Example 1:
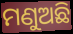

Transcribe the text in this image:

ମଣୁଅଛି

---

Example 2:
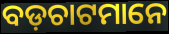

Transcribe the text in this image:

ବଡ଼ଚାଟମାନେ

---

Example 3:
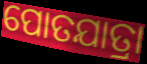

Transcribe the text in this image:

ପୋତଯାତ୍ରା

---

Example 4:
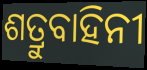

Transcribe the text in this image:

ଶତ୍ରୁବାହିନୀ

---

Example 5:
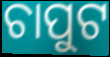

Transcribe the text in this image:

ଚାପୁଟ